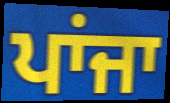
ਪਾਂਜਾ